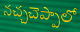
నచ్చచెప్పాలో